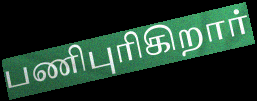
பணிபுரிகிறார்